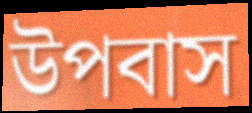
উপবাস